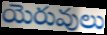
యెరువులు